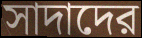
সাদাদের